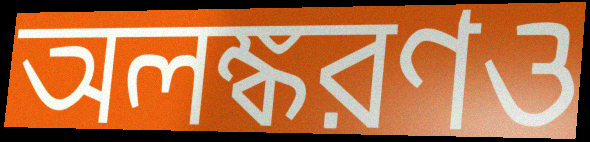
অলঙ্করণও